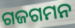
ଗଜଗମନ